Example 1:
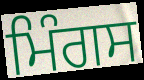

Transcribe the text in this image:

ਮਿੰਗਸ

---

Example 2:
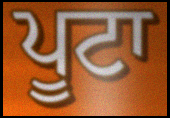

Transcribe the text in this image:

ਪੂਟਾ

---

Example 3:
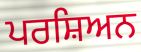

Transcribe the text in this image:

ਪਰਸ਼ਿਅਨ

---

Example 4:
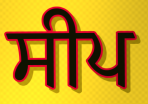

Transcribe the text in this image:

ਸੀਪ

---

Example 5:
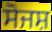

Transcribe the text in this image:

ਸੋਜਸ਼